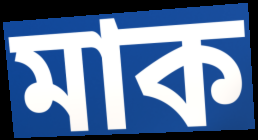
মাক